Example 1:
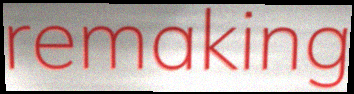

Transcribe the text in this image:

remaking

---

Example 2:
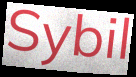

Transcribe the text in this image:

Sybil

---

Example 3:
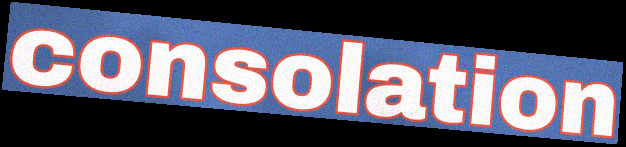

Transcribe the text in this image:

consolation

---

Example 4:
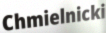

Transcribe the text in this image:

Chmielnicki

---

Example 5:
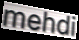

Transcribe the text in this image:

mehdi